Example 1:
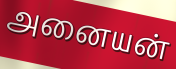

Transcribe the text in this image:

அனையன்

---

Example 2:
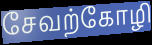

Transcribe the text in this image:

சேவற்கோழி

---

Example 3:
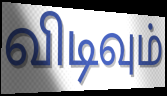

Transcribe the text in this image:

விடிவும்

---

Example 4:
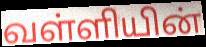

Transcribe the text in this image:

வள்ளியின்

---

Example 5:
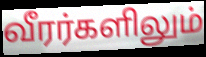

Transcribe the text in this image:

வீரர்களிலும்